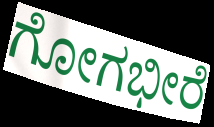
ಗೋಗಭೀರೆ